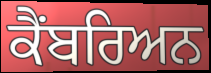
ਕੈਂਬਰਿਅਨ